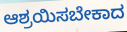
ಆಶ್ರಯಿಸಬೇಕಾದ